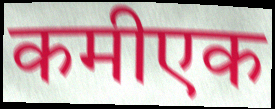
कमीएक